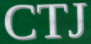
CTJ